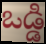
ఒడ్డి